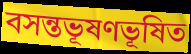
বসন্তভূষণভূষিত